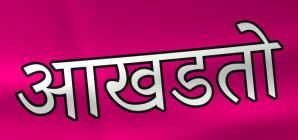
आखडतो